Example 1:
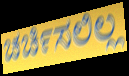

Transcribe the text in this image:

ಚರ್ಚಿಸಲಿಲ್ಲ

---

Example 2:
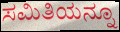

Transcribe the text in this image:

ಸಮಿತಿಯನ್ನೂ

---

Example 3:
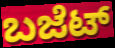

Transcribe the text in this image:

ಬಜೆಟ್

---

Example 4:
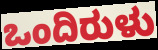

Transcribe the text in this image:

ಒಂದಿರುಳು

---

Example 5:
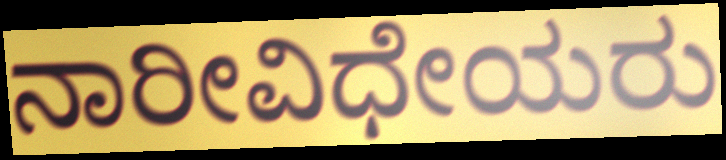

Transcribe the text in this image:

ನಾರೀವಿಧೇಯರು